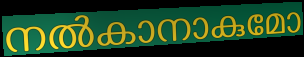
നൽകാനാകുമോ